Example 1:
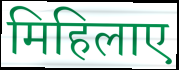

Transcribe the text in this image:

मिहिलाए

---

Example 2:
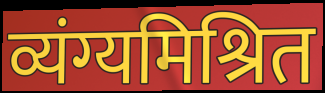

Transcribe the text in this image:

व्यंग्यमिश्रित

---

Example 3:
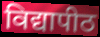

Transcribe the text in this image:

विद्यापीठ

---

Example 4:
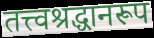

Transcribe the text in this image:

तत्त्वश्रद्धानरूप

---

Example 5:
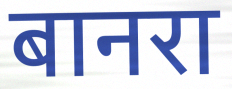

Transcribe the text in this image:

बानरा